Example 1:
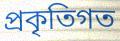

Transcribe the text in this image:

প্ৰকৃতিগত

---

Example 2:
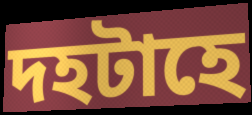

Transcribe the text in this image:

দহটাহে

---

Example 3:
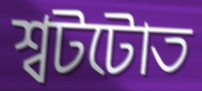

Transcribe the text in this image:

শ্বটটোত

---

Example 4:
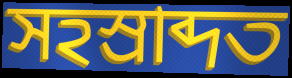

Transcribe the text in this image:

সহস্ৰাব্দত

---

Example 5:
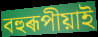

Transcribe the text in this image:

বহুৰূপীয়াই